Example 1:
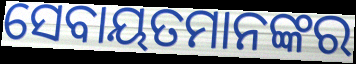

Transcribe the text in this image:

ସେବାୟତମାନଙ୍କର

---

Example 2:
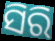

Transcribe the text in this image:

ସିରି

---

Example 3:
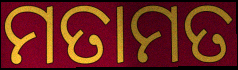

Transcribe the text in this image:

ମତାମତ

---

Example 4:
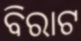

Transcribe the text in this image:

ବିରାଟ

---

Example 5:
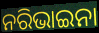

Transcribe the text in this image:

ନରିଭାଇନା